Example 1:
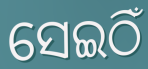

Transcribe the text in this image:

ସେଇଠିଁ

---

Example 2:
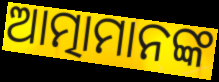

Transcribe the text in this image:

ଆତ୍ମାମାନଙ୍କ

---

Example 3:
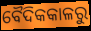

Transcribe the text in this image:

ବୈଦିକକାଳରୁ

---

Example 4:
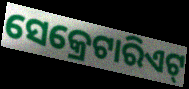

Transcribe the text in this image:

ସେକ୍ରେଟାରିଏଟ୍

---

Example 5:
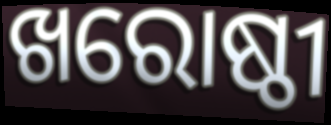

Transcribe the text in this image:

ଖରୋଷ୍ଠୀ